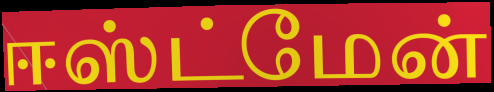
ஈஸ்ட்மேன்